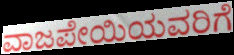
ವಾಜಪೇಯಿಯವರಿಗೆ